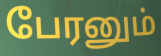
பேரனும்